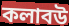
কলাবউ